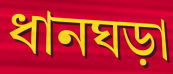
ধানঘড়া